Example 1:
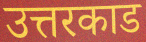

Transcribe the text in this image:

उत्तरकाड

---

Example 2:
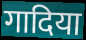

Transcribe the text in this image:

गादिया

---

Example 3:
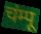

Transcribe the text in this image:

चंम्पू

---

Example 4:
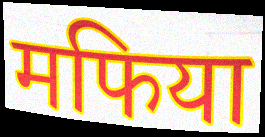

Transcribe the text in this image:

मफिया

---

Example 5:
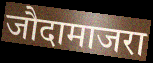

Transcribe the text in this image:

जौदामाजरा